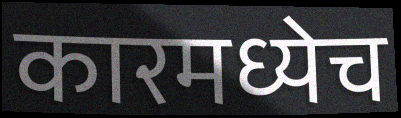
कारमध्येच